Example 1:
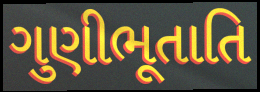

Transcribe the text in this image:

ગુણીભૂતાતિ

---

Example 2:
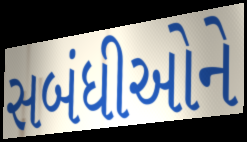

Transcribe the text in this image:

સબંધીઓને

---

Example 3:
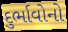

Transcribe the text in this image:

દુર્ભાવોનો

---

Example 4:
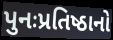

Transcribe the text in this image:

પુનઃપ્રતિષ્ઠાનો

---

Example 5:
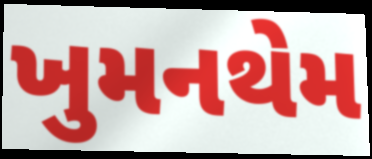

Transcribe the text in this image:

ખુમનથેમ